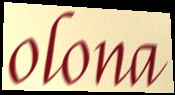
olona